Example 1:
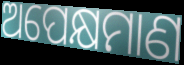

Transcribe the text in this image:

ଅପେକ୍ଷମାଣ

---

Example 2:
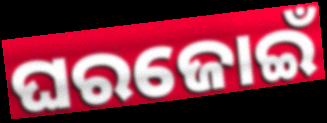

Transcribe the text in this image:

ଘରଜୋଇଁ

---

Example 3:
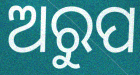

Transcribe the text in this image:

ଅରୁପ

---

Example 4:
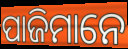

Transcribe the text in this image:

ପାଜିମାନେ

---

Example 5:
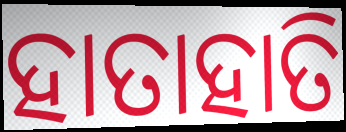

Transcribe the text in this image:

ହାତାହାତି